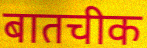
बातचीक